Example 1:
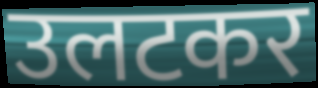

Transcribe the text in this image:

उलटकर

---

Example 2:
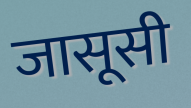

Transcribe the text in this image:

जासूसी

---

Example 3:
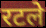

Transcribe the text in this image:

रटले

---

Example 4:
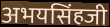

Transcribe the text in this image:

अभयसिंहजी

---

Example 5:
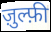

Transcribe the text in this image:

ज़ुल्फ़ी